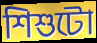
শিশুটো